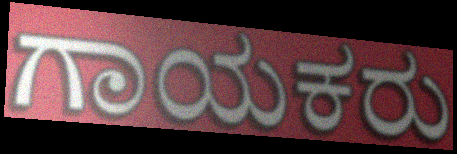
ಗಾಯಕರು